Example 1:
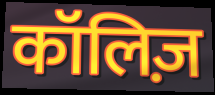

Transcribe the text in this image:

कॉलिज़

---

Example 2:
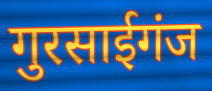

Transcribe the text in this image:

गुरसाईगंज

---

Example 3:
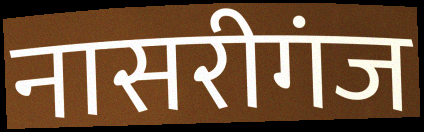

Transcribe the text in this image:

नासरीगंज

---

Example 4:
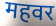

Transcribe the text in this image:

महवर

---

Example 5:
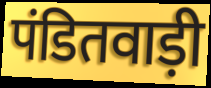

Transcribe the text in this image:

पंडितवाड़ी